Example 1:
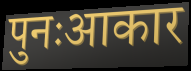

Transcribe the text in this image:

पुनःआकार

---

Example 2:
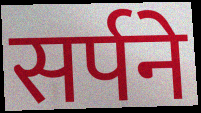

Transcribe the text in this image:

सर्पने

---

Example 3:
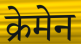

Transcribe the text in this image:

क्रेमेन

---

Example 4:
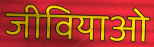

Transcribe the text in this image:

जीवियाओ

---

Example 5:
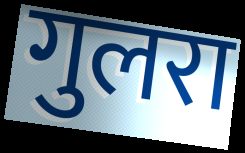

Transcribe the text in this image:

गुलरा